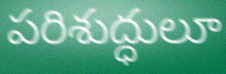
పరిశుద్ధులూ